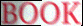
BOOK